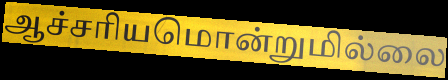
ஆச்சரியமொன்றுமில்லை